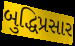
બુદ્ધિપ્રસાર